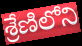
శ్రేణిలోని